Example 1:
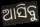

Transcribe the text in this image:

ଆସିବୁ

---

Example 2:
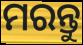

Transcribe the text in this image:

ମରନ୍ତୁ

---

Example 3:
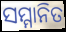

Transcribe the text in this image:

ସମ୍ମାନିତ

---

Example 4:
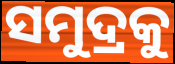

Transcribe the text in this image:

ସମୁଦ୍ରକୁ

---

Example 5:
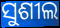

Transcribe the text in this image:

ସୁଶୀଲ